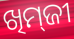
ଖିମ୍‌ଜୀ